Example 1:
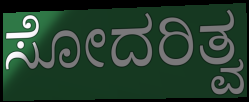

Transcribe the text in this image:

ಸೋದರಿತ್ವ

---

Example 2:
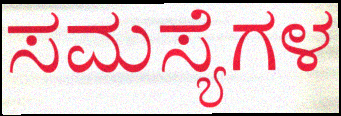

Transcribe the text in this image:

ಸಮಸ್ಯೆಗಳ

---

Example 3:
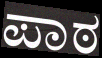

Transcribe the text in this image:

ಪಾಠ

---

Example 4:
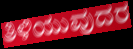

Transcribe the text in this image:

ತಿಳಿಯುವುದರ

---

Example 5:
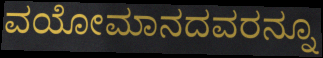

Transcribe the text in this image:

ವಯೋಮಾನದವರನ್ನೂ